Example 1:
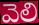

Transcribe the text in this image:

వెలి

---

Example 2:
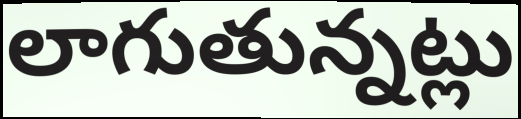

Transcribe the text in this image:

లాగుతున్నట్లు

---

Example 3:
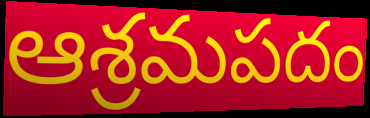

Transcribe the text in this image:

ఆశ్రమపదం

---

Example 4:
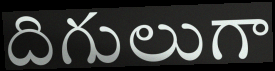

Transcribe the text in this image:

దిగులుగా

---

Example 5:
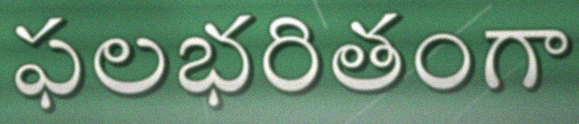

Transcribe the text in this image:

ఫలభరితంగా